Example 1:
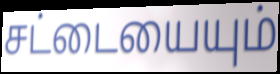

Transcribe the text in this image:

சட்டையையும்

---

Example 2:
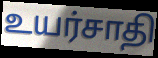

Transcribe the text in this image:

உயர்சாதி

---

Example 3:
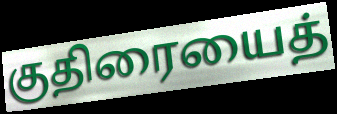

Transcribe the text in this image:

குதிரையைத்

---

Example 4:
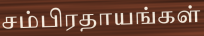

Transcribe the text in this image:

சம்பிரதாயங்கள்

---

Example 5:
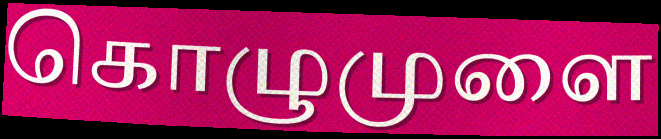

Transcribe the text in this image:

கொழுமுளை